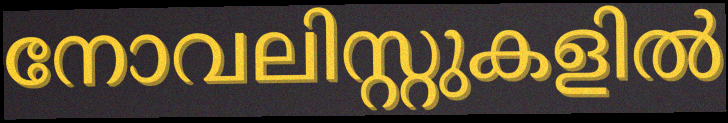
നോവലിസ്റ്റുകളിൽ